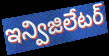
ఇన్విజిలేటర్